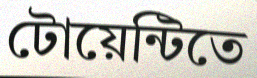
টোয়েন্টিতে